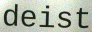
deist